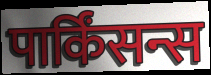
पार्किंसन्स